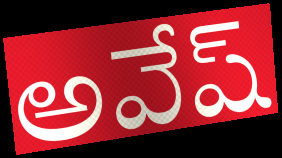
అవేష్